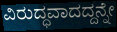
ವಿರುದ್ಧವಾದದ್ದನ್ನೇ